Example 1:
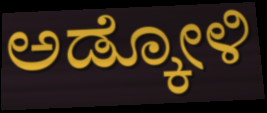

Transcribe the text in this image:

ಅಡ್ಕೋಳಿ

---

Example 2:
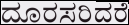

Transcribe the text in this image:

ದೂರಸರಿದರೆ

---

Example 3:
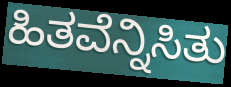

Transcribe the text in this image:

ಹಿತವೆನ್ನಿಸಿತು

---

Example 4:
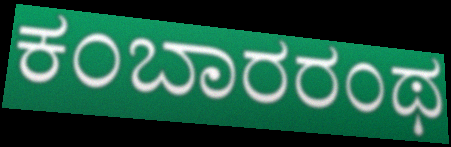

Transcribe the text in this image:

ಕಂಬಾರರಂಥ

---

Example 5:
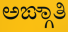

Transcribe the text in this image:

ಅಙ್ಗಾತಿ